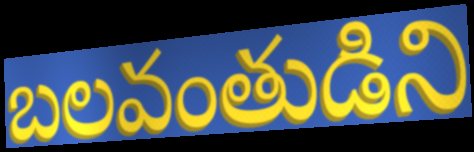
బలవంతుడిని